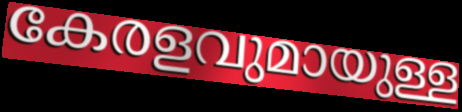
കേരളവുമായുള്ള